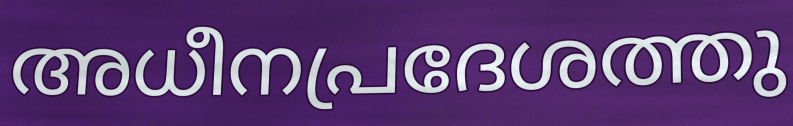
അധീനപ്രദേശത്തു